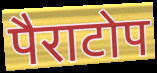
पैराटोप